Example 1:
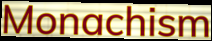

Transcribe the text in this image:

Monachism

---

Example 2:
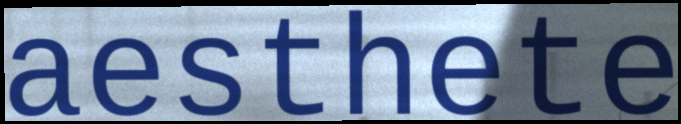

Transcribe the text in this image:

aesthete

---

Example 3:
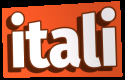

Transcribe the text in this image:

itali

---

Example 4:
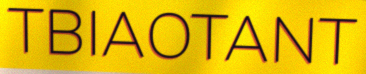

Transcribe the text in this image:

TBIAOTANT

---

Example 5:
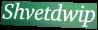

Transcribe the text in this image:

Shvetdwip